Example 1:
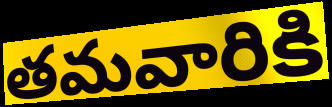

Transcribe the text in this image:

తమవారికి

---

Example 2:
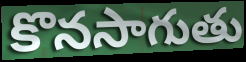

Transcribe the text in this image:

కొనసాగుతు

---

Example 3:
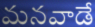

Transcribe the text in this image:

మనవాడే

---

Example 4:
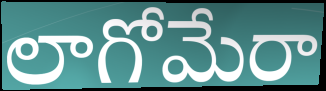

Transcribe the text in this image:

లాగోమేరా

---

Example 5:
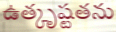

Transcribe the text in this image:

ఉత్కృష్టతను